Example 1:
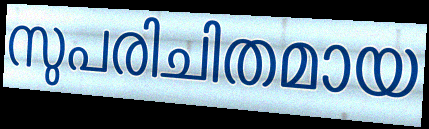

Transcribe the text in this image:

സുപരിചിതമായ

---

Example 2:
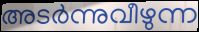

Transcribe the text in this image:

അടർന്നുവീഴുന്ന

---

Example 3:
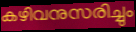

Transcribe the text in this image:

കഴിവനുസരിച്ചും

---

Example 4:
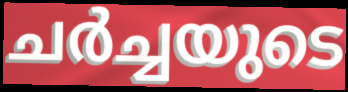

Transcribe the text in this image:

ചർച്ചയുടെ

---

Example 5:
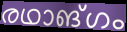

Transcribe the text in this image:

രഥാങ്ഗം